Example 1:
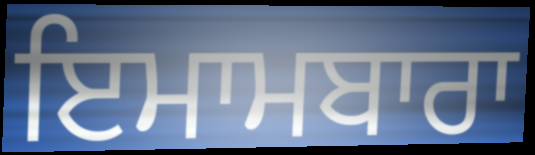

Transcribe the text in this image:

ਇਮਾਮਬਾਰਾ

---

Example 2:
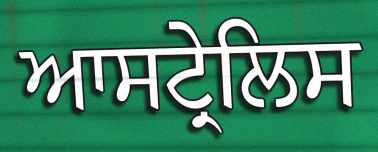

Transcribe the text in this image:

ਆਸਟ੍ਰੇਲਿਸ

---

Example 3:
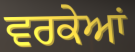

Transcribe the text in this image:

ਵਰਕੇਆਂ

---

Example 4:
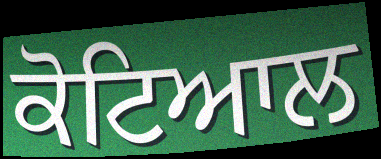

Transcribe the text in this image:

ਕੋਟਿਆਲ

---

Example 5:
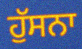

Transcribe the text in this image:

ਹੁੱਸਨਾ